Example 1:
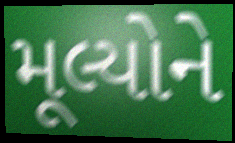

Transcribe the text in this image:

મૂલ્યોને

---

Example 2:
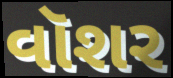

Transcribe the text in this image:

વૉશર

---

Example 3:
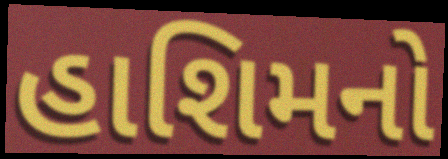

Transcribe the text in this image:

હાશિમનો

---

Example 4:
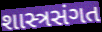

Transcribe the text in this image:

શાસ્ત્રસંગત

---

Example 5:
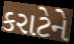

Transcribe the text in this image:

કરાટેને